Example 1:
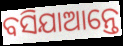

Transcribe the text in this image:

ବସିଯାଆନ୍ତେ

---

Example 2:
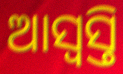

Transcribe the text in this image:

ଆସ୍ୱସ୍ତି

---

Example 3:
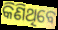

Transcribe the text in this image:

କିଣିଥିବେ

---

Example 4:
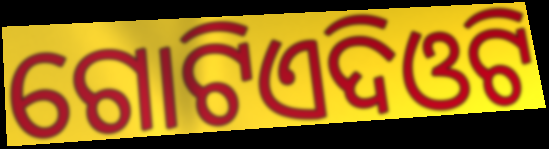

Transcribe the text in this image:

ଗୋଟିଏଦିଓଟି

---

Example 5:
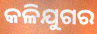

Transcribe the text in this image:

କଳିଯୁଗର